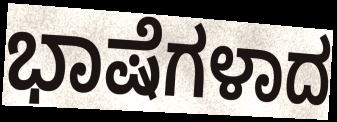
ಭಾಷೆಗಳಾದ